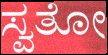
ಸ್ವತೋ